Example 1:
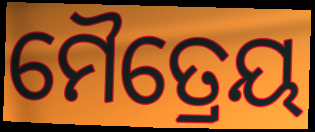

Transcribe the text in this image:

ମୈତ୍ରେୟ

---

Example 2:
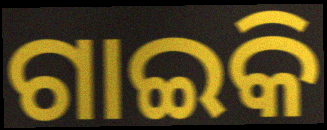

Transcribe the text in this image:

ଗାଇକି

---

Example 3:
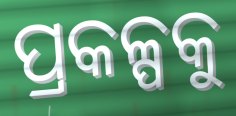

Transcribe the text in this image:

ପ୍ରକଳ୍ପକୁ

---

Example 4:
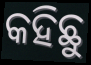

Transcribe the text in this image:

କହିଛୁ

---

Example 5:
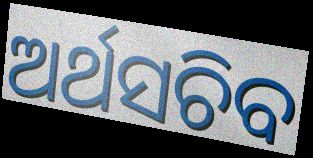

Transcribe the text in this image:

ଅର୍ଥସଚିବ